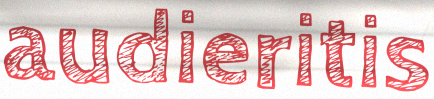
audieritis